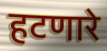
हटणारे